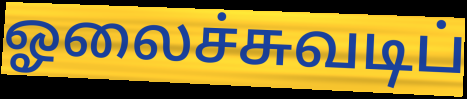
ஓலைச்சுவடிப்